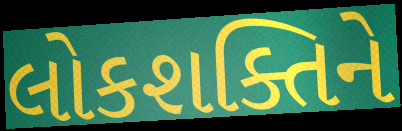
લોકશક્તિને